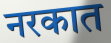
नरकात